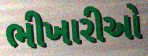
ભીખારીઓ